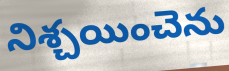
నిశ్చయించెను